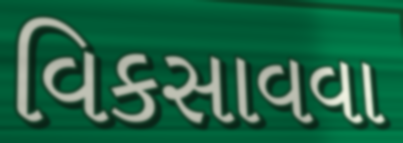
વિકસાવવા